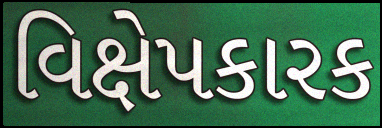
વિક્ષેપકારક